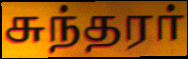
சுந்தரர்